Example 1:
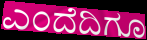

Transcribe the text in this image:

ಎಂದೆದಿಗೂ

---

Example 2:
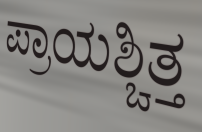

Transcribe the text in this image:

ಪ್ರಾಯಶ್ಚಿತ್ತ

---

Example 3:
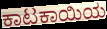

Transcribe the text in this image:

ಕಾಟಕಾಯಿಯ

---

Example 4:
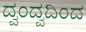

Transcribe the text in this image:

ದ್ವಂದ್ವದಿಂದ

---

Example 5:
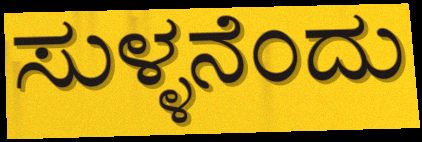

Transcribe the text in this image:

ಸುಳ್ಳನೆಂದು